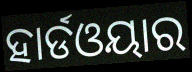
ହାର୍ଡଓୟାର